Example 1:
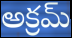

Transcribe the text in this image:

అక్రమ్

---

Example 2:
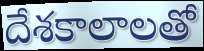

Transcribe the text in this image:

దేశకాలాలతో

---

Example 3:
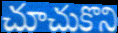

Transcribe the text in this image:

చూచుకొని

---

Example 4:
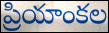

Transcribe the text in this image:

ప్రియాంకల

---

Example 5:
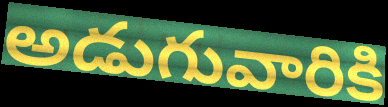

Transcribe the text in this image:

అడుగువారికి